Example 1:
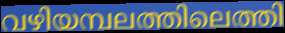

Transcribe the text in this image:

വഴിയമ്പലത്തിലെത്തി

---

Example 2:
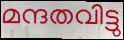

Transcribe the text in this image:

മന്ദതവിട്ടു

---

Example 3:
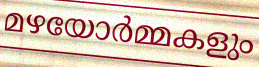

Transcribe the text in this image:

മഴയോർമ്മകളും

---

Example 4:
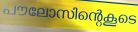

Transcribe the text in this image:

പൗലോസിന്റെകൂടെ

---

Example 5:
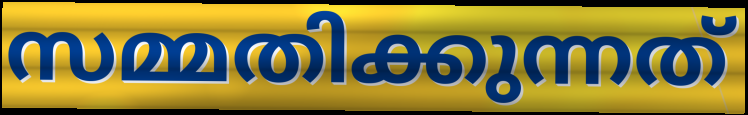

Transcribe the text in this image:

സമ്മതിക്കുന്നത്